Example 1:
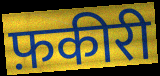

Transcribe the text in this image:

फ़कीरी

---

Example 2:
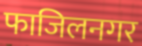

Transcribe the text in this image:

फाजिलनगर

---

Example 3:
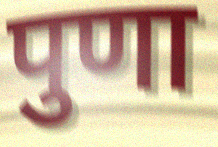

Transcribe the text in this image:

पुणा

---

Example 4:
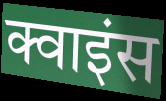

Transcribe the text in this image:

क्वाइंस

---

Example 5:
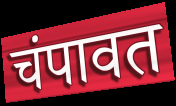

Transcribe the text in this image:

चंपावत